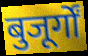
बुजूर्गों